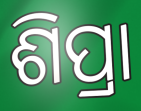
ଶିପ୍ରା